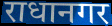
राधानगर